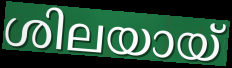
ശിലയായ്